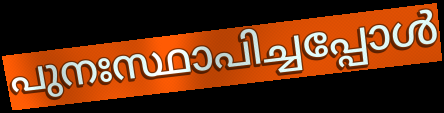
പുനഃസ്ഥാപിച്ചപ്പോൾ